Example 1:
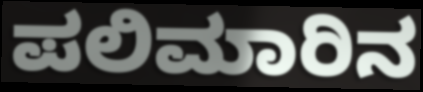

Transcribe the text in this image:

ಪಲಿಮಾರಿನ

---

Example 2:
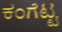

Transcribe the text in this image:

ಕಂಗೆಟ್ಟ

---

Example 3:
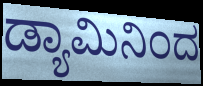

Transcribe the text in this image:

ಡ್ಯಾಮಿನಿಂದ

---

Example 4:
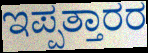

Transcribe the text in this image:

ಇಪ್ಪತ್ತಾರರ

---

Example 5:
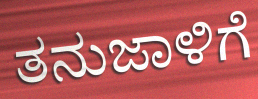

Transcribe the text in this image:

ತನುಜಾಳಿಗೆ